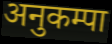
अनुकम्पा